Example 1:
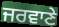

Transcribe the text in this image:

ਜਰਵਾਣੇ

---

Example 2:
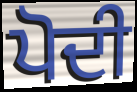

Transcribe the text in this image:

ਪੋਦੀ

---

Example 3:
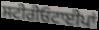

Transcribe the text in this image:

ਸਟੀਰੀਓਟਾਈਪਾਂ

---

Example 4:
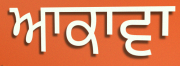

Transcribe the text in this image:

ਆਕਾਵਾ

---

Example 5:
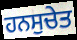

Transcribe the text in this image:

ਹਨਸੁਚੇਤ